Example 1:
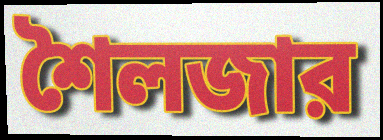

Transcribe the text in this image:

শৈলজার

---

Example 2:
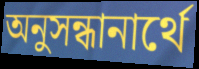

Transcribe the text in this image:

অনুসন্ধানার্থে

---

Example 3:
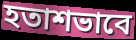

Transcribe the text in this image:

হতাশভাবে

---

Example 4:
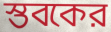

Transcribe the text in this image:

স্তবকের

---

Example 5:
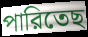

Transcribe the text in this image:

পারিতেছ